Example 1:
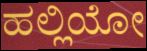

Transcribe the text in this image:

ಹಲ್ಲಿಯೋ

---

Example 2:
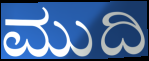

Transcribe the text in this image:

ಮುದಿ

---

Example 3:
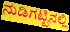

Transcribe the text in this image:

ನುಡಿಗಟ್ಟಿನಲ್ಲಿ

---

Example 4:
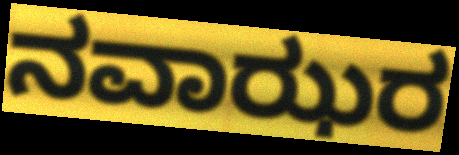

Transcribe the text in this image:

ನವಾಝರ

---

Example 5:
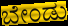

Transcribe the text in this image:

ಬೇಂಡು